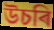
উচৰি